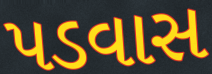
પડવાસ